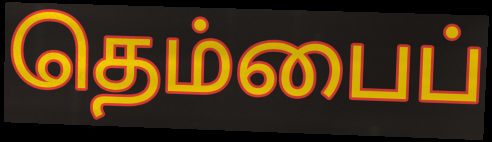
தெம்பைப்